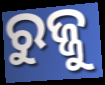
ରୁଜ୍ଜୁ